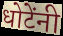
धोटेंनी